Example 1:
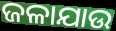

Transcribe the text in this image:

ଜଳାଯାଉ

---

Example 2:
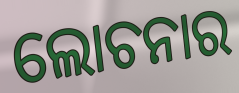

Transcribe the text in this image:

ଲୋଚନାର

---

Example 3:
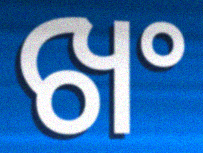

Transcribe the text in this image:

ଖଂ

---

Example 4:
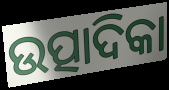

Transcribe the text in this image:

ଉତ୍ପାଦିକା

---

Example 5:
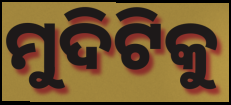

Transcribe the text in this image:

ମୁଦିଟିକୁ